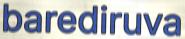
barediruva